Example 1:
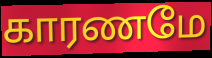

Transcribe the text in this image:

காரணமே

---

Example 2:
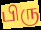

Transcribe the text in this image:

பிரு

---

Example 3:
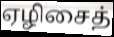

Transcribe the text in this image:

ஏழிசைத்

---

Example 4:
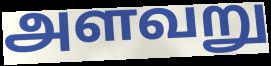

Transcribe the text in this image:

அளவறு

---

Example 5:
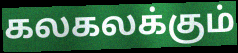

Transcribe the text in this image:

கலகலக்கும்